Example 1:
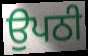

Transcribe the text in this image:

ਉਪਠੀ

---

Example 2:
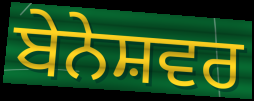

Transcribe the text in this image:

ਬੇਨੇਸ਼ਵਰ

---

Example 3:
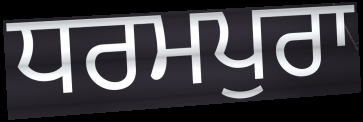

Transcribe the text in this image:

ਧਰਮਪੁਰਾ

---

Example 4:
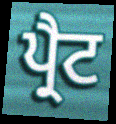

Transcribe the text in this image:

ਪ੍ਰੈਟ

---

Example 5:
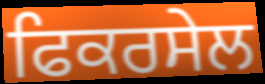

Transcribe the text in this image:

ਫਿਕਰਸੇਲ